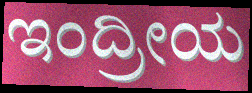
ಇಂದ್ರೀಯ